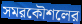
সমরকৌশলের